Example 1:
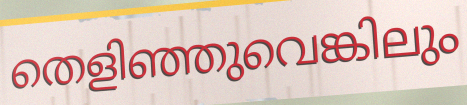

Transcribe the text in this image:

തെളിഞ്ഞുവെങ്കിലും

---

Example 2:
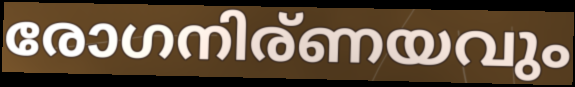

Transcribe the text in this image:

രോഗനിര്ണയവും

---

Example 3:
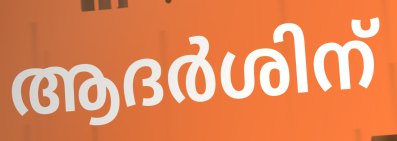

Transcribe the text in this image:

ആദർശിന്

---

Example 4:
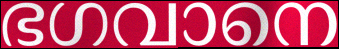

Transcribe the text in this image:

ഭഗവാനെ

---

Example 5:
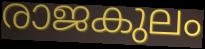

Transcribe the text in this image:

രാജകുലം